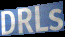
DRLs